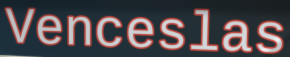
Venceslas